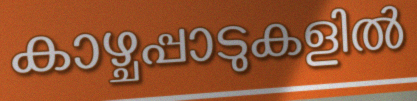
കാഴ്ചപ്പാടുകളിൽ